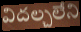
విదల్చలేని